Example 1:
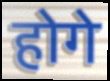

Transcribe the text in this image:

होगे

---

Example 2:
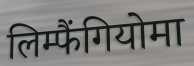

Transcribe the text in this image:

लिम्फैंगियोमा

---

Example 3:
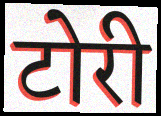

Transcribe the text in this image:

टोरी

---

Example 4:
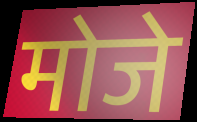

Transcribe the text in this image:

मोजे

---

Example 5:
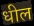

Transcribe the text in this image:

धील